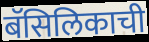
बॅसिलिकाची